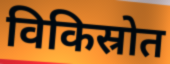
विकिस्रोत